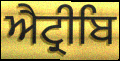
ਐਟ੍ਰੀਬਿ